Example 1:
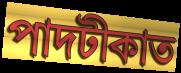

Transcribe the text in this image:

পাদটীকাত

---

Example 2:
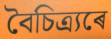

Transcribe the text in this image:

বৈচিত্ৰ্যৰে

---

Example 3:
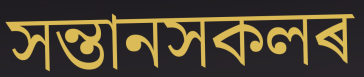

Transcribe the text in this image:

সন্তানসকলৰ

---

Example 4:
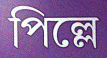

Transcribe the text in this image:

পিল্লে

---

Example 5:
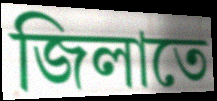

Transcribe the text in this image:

জিলাতে